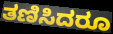
ತಣಿಸಿದರೂ